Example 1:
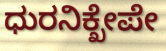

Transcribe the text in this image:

ಧುರನಿಕ್ಖೇಪೇ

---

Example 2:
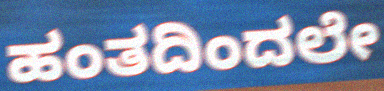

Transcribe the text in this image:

ಹಂತದಿಂದಲೇ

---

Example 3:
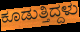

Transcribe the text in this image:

ಕೂಡುತ್ತಿದ್ದಳು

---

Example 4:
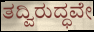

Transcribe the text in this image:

ತದ್ವಿರುದ್ಧವೇ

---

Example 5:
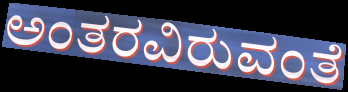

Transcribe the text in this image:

ಅಂತರವಿರುವಂತೆ